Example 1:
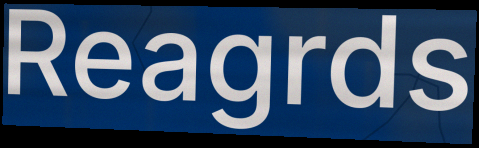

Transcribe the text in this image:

Reagrds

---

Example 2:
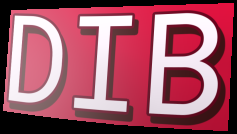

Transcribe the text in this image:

DIB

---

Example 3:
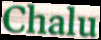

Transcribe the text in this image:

Chalu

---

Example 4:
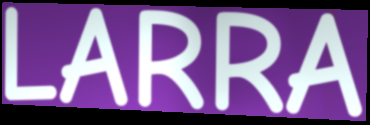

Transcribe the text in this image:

LARRA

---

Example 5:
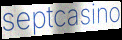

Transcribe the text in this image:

septcasino